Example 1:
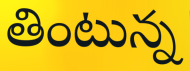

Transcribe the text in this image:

తింటున్న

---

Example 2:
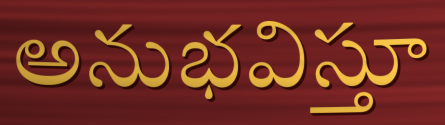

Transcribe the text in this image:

అనుభవిస్తూ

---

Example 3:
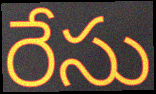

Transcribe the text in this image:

రేసు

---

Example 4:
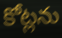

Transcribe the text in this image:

కోట్లను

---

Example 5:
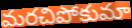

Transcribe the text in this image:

మరచిపోకుమా